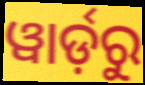
ୱାର୍ଡ଼ରୁ